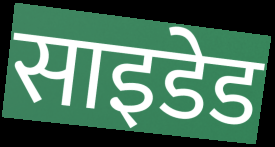
साइडेड